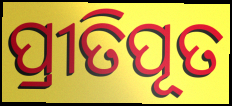
ପ୍ରୀତିପୂତ